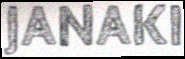
JANAKI